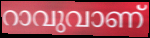
റാവുവാണ്